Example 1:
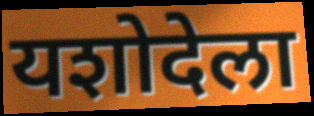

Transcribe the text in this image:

यशोदेला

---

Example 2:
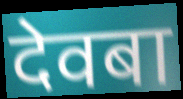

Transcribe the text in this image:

देवबा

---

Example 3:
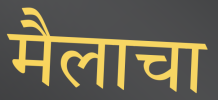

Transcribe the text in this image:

मैलाचा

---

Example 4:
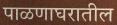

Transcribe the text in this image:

पाळणाघरातील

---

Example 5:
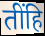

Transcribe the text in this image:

तींहि